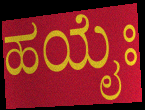
ಹಯೈಃ